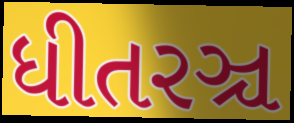
ધીતરઞ્ચ